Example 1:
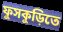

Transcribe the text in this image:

ফুসকুড়িতে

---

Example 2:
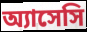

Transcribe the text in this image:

অ্যাসেসি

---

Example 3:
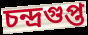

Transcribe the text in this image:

চন্দ্রগুপ্ত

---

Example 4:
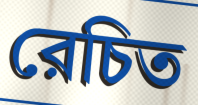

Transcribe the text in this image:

রেচিত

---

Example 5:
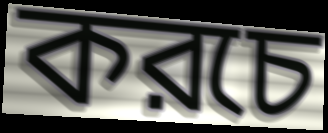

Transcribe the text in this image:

করচে